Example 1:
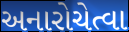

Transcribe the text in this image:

અનારોચેત્વા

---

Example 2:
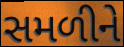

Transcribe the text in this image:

સમળીને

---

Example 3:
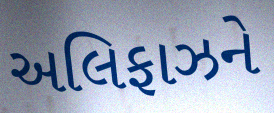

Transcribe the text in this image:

અલિફાઝને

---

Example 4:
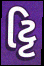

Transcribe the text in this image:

ટ્ટિ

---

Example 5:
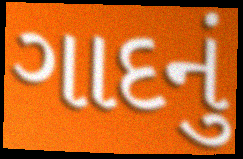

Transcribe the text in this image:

ગાદનું